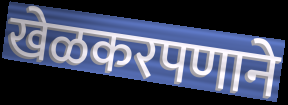
खेळकरपणाने